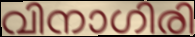
വിനാഗിരി